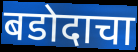
बडोदाचा